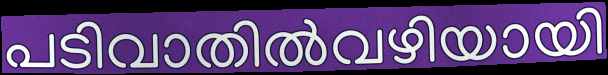
പടിവാതിൽവഴിയായി